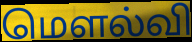
மௌல்வி